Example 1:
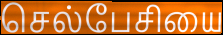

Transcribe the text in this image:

செல்பேசியை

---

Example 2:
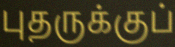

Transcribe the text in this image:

புதருக்குப்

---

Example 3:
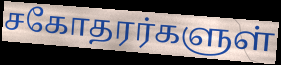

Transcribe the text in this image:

சகோதரர்களுள்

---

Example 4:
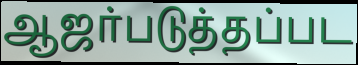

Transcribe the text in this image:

ஆஜர்படுத்தப்பட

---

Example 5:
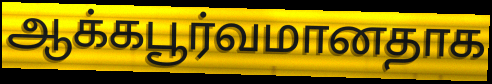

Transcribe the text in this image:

ஆக்கபூர்வமானதாக